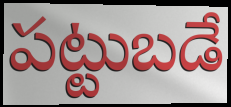
పట్టుబడే